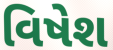
વિષેશ